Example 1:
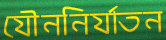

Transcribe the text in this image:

যৌননির্যাতন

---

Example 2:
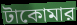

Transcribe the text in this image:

টাকোমার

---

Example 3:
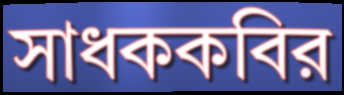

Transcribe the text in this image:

সাধককবির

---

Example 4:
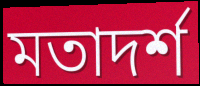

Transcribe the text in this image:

মতাদর্শ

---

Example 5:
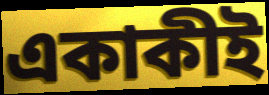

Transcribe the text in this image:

একাকীই